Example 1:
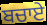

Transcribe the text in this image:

ਬਚਾਏ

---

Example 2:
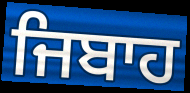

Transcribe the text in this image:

ਜਿਬਾਹ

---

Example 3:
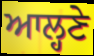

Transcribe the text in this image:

ਆਲ੍ਹਣੇ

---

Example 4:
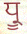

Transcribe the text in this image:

ਧ੍ਰੂ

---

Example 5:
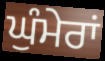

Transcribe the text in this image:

ਘੁੰਮੇਰਾਂ